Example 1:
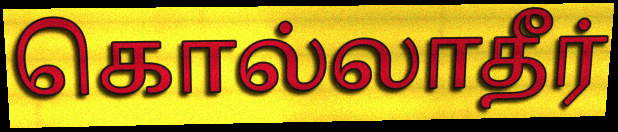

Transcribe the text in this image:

கொல்லாதீர்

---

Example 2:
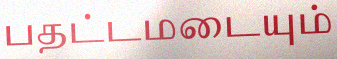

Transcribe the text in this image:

பதட்டமடையும்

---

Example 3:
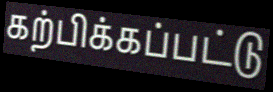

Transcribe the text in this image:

கற்பிக்கப்பட்டு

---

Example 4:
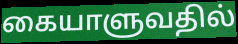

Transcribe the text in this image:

கையாளுவதில்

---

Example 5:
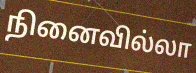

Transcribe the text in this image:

நினைவில்லா